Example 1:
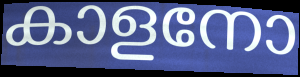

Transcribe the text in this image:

കാളനോ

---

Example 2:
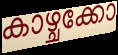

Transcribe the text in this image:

കാഴ്ചക്കോ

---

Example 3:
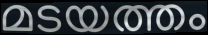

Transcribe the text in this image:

മടയത്തം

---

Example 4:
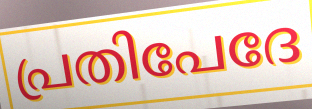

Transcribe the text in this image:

പ്രതിപേദേ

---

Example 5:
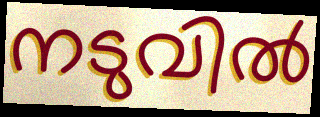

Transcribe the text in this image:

നടുവിൽ